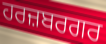
ਹਰਜ਼ਬਰਗਰ